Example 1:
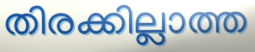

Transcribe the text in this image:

തിരക്കില്ലാത്ത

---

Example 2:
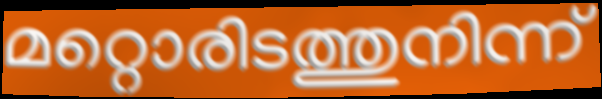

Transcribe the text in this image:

മറ്റൊരിടത്തുനിന്ന്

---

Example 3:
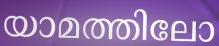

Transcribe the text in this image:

യാമത്തിലോ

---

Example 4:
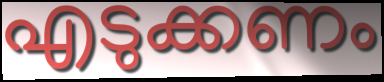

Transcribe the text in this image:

എടുക്കണം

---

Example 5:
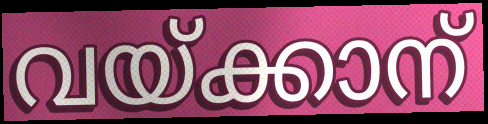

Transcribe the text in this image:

വയ്ക്കാന്